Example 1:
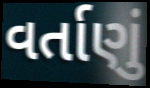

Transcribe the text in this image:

વર્તાણું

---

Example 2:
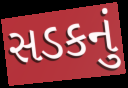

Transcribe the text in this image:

સડકનું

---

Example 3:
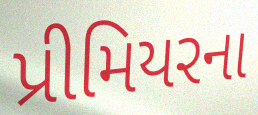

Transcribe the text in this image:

પ્રીમિયરના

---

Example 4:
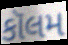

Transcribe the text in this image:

કૉલમ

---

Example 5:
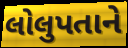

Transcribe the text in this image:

લોલુપતાને